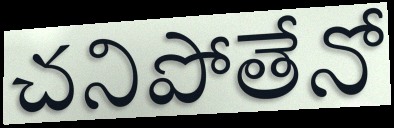
చనిపోతేనో